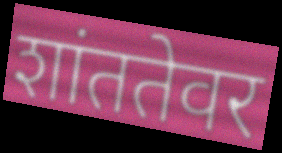
शांततेवर